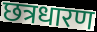
छत्रधारण